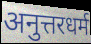
अनुत्तरधर्म